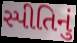
સ્પીતિનું